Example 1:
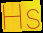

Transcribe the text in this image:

Hs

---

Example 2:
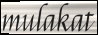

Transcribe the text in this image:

mulakat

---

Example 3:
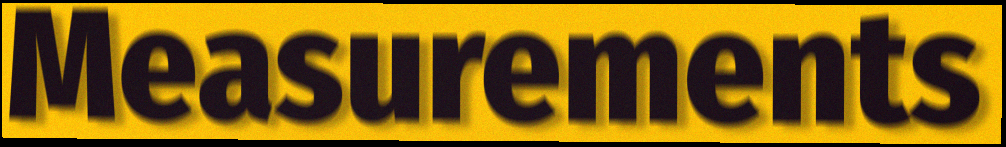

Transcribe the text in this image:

Measurements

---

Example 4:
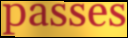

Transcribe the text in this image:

passes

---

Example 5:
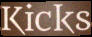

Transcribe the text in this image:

Kicks